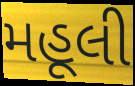
મહૂલી